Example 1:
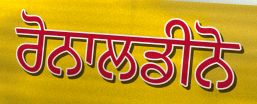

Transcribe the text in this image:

ਰੋਨਾਲਡੀਨੋ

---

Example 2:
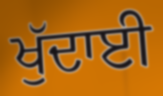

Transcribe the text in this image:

ਖੁੱਦਾਈ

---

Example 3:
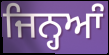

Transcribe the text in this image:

ਜਿਨ੍ਹਆੰ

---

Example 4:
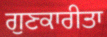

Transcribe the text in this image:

ਗੁਣਕਾਰੀਤਾ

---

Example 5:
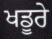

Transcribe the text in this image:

ਖਡੂਰੇ